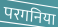
परगनिया